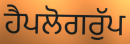
ਹੈਪਲੋਗਰੁੱਪ